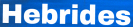
Hebrides